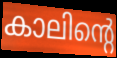
കാലിന്റെ